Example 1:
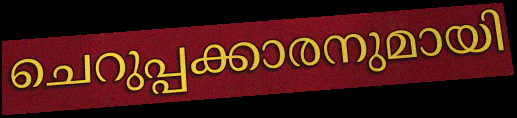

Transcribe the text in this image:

ചെറുപ്പക്കാരനുമായി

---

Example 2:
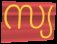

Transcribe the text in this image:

സ്യ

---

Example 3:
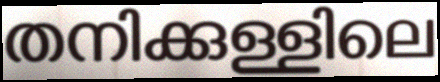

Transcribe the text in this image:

തനിക്കുള്ളിലെ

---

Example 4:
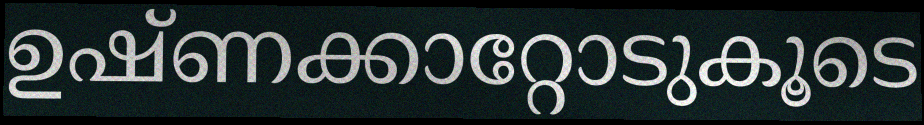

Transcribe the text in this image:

ഉഷ്ണക്കാറ്റോടുകൂടെ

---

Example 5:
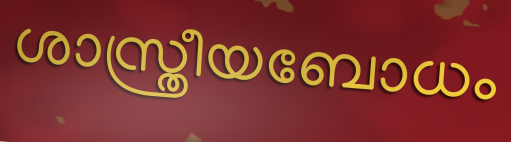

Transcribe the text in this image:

ശാസ്ത്രീയബോധം